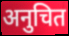
अनुचित